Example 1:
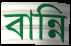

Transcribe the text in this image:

বান্নি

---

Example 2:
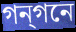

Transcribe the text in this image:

গন্গনে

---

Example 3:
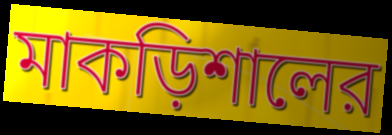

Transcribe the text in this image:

মাকড়িশালের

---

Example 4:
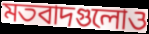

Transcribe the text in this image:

মতবাদগুলোও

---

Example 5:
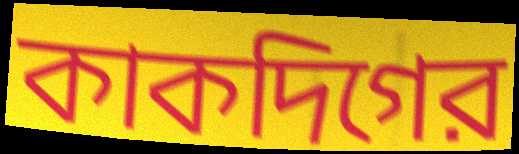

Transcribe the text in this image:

কাকদিগের